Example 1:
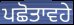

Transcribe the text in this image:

ਪਛੋਤਾਵਹੇ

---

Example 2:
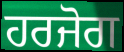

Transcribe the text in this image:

ਹਰਜੋਗ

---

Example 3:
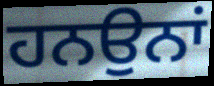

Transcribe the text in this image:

ਹਨਉਨਾਂ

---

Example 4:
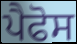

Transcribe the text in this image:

ਪੈਫੋਸ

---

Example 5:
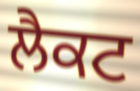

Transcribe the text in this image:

ਲੈਕਟ